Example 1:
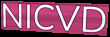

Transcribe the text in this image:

NICVD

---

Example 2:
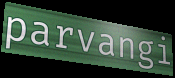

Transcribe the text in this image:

parvangi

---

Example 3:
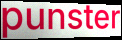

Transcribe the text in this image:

punster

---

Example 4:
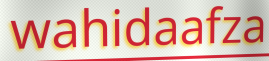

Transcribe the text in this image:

wahidaafza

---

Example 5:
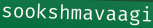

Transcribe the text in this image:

sookshmavaagi